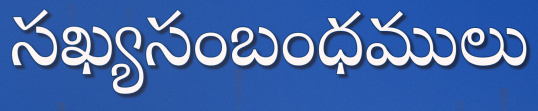
సఖ్యసంబంధములు